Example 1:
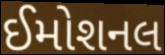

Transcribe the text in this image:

ઈમોશનલ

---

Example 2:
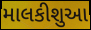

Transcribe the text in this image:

માલકીશુઆ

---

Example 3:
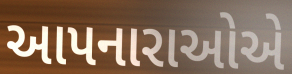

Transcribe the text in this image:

આપનારાઓએ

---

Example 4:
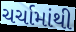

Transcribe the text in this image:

ચર્ચામાંથી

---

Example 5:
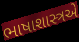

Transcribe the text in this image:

ભાષાશાસ્ત્રએ